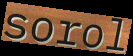
sorol